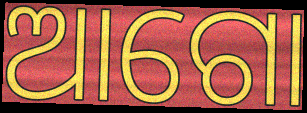
ଆଗୋ